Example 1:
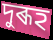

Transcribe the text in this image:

দুৰূহ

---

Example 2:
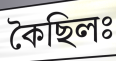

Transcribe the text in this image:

কৈছিলঃ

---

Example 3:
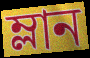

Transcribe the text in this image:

ম্লান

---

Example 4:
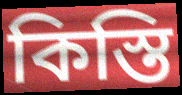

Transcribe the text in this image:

কিস্তি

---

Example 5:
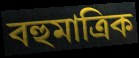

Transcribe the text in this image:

বহুমাত্ৰিক